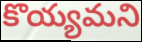
కొయ్యమని